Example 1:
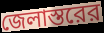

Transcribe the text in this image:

জেলাস্তরের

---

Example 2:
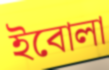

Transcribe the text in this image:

ইবোলা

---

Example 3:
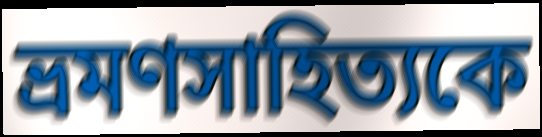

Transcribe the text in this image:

ভ্রমণসাহিত্যকে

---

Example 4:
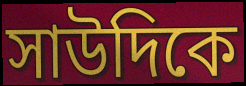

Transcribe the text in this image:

সাউদিকে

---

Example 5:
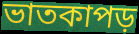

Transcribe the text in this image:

ভাতকাপড়